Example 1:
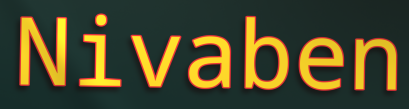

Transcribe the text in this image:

Nivaben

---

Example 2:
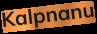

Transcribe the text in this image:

Kalpnanu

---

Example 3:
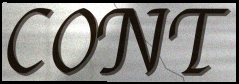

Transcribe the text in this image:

CONT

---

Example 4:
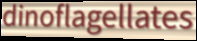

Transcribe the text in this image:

dinoflagellates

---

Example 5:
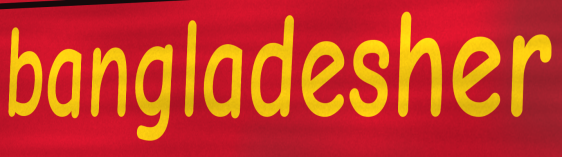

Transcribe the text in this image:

bangladesher